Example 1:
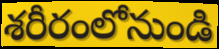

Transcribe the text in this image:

శరీరంలోనుండి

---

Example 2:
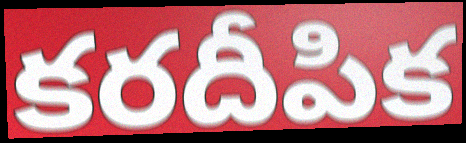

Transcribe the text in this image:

కరదీపిక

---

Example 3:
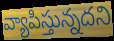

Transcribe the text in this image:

వ్యాపిస్తున్నదని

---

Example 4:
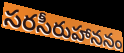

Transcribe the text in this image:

సరసీరుహాననం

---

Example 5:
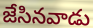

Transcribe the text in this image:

జేసినవాడు